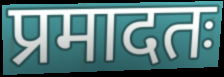
प्रमादतः